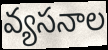
వ్యసనాల